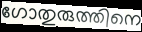
ഗോതുരുത്തിനെ